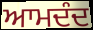
ਆਮਦੰਦ